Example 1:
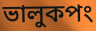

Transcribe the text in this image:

ভালুকপং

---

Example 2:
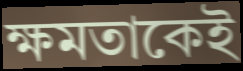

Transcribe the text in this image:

ক্ষমতাকেই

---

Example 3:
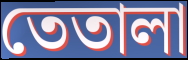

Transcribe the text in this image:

তেতালা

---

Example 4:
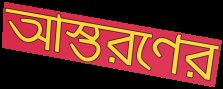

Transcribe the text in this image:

আস্তরণের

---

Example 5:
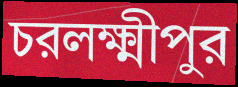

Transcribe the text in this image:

চরলক্ষ্মীপুর